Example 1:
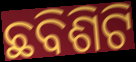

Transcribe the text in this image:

ଛବିଶିଟି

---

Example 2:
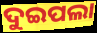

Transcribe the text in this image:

ଦୁଇପଲା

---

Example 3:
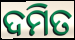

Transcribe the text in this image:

ଦମିତ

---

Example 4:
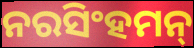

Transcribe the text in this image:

ନରସିଂହମନ୍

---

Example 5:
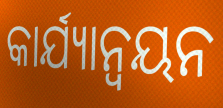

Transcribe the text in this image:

କାର୍ଯ୍ୟାନ୍ଵୟନ